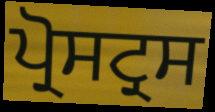
ਪ੍ਰੋਸਟ੍ਰਸ